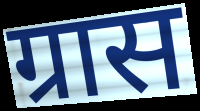
ग्रास